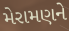
મેરામણને